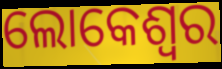
ଲୋକେଶ୍ୱର